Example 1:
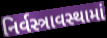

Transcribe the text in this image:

નિર્વસ્ત્રાવસ્થામાં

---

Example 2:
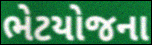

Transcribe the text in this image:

ભેટયોજના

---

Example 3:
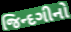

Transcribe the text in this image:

જિન્દગીનો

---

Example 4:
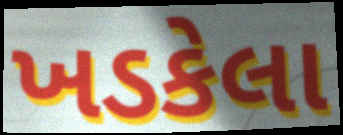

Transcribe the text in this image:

ખડકેલા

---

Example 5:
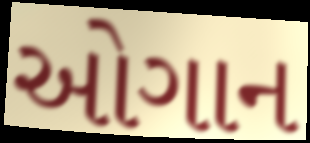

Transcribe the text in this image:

ઓગાન